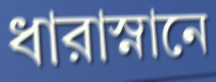
ধারাস্নানে